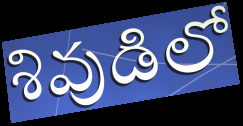
శివుడిలో